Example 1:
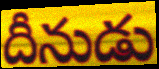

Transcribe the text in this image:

దీనుడు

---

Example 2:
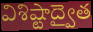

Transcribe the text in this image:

విశిష్టాద్వైత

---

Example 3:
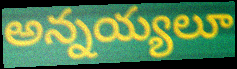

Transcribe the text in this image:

అన్నయ్యలూ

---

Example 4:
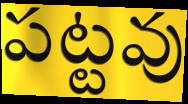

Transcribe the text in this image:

పట్టవు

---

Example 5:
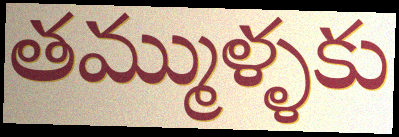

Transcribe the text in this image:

తమ్ముళ్ళకు